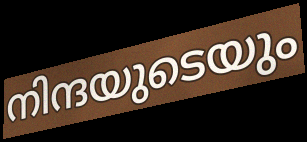
നിന്ദയുടെയും